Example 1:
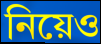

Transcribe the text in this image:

নিয়েও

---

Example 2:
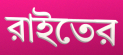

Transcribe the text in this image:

রাইতের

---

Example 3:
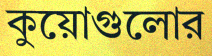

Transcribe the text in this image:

কুয়োগুলোর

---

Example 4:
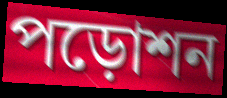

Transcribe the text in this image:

পড়োশন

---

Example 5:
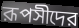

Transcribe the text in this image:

রূপসীদের